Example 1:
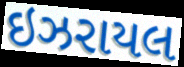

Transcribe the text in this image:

ઇઝરાયલ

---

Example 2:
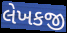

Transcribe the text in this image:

લેખકજી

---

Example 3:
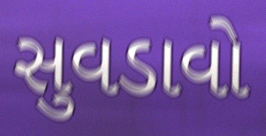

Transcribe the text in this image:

સુવડાવો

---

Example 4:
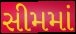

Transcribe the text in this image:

સીમમાં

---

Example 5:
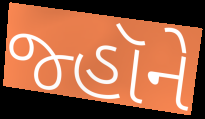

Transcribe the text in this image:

જ્હૉને